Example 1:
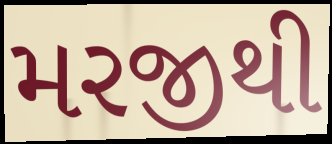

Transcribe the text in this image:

મરજીથી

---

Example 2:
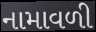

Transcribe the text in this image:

નામાવળી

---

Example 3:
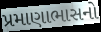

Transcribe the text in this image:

પ્રમાણાભાસનો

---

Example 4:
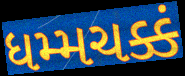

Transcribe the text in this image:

ધમ્મચક્કં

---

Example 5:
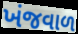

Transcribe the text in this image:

ખંજવાળ